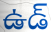
ఉడ్